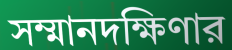
সম্মানদক্ষিণার